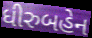
ધીરુબહેન